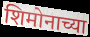
शिमोनाच्या